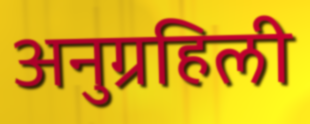
अनुग्रहिली